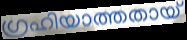
ഗ്രഹിയാത്തതായ്